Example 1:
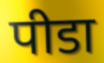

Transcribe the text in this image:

पीडा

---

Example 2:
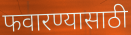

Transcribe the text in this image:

फवारण्यासाठी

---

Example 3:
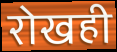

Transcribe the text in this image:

रोखही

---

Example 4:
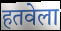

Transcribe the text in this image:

हतवेला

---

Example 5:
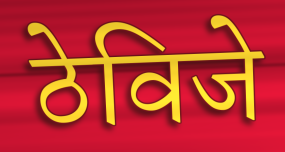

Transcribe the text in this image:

ठेविजे